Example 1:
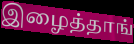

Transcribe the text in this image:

இழைத்தாங்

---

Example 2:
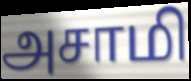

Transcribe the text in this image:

அசாமி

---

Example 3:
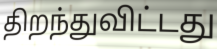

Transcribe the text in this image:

திறந்துவிட்டது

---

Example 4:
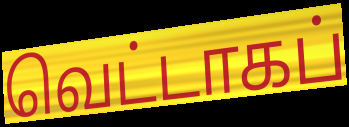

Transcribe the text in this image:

வெட்டாகப்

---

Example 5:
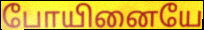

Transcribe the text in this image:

போயினையே